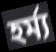
হর্ম্য